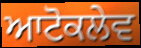
ਆਟੋਕਲੇਵ